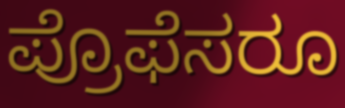
ಪ್ರೊಫೆಸರೂ